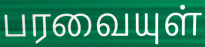
பரவையுள்